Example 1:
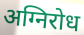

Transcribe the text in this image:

अग्निरोध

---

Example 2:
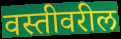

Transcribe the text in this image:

वस्तीवरील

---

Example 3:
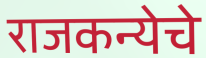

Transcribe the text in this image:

राजकन्येचे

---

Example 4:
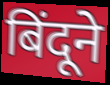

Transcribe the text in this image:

बिंदूने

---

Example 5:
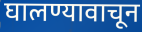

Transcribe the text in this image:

घालण्यावाचून